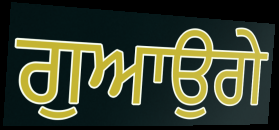
ਗੁਆਉਗੇ